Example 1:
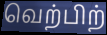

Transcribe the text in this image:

வெற்பிற்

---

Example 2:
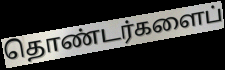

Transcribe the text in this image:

தொண்டர்களைப்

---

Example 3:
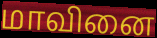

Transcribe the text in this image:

மாவினை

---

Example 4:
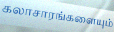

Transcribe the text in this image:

கலாசாரங்களையும்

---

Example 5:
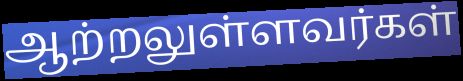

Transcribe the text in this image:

ஆற்றலுள்ளவர்கள்